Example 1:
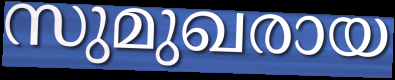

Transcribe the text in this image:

സുമുഖരായ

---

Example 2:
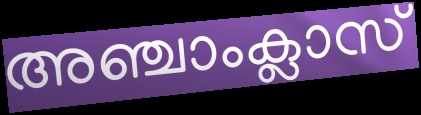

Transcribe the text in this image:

അഞ്ചാംക്ലാസ്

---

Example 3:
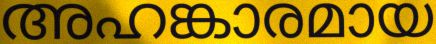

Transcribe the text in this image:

അഹങ്കാരമായ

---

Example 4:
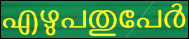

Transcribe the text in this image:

എഴുപതുപേർ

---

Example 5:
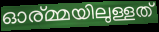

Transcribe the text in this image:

ഓര്മ്മയിലുള്ളത്